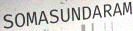
SOMASUNDARAM